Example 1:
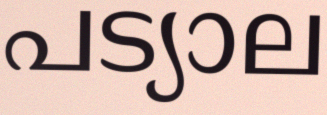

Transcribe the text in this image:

പട്യാല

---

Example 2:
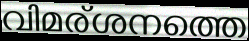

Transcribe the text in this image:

വിമര്ശനത്തെ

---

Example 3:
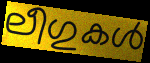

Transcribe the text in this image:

ലീഗുകൾ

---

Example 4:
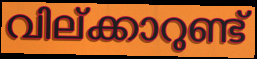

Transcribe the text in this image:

വില്ക്കാറുണ്ട്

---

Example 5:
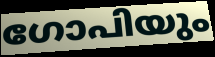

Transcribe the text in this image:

ഗോപിയും